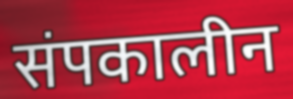
संपकालीन